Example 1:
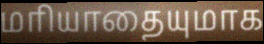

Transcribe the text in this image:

மரியாதையுமாக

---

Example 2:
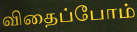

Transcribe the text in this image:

விதைப்போம்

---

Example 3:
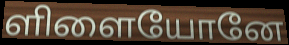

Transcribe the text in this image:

ளிளையோனே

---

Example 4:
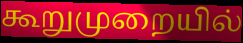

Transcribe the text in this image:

கூறுமுறையில்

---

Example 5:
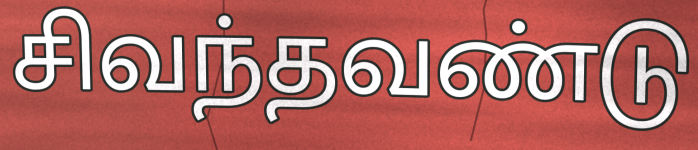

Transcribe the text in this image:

சிவந்தவண்டு